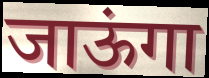
जाऊंगा